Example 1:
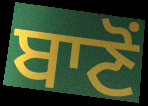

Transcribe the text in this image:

ਬਾਣੋਂ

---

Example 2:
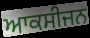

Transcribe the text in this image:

ਆਕਸੀਜਨ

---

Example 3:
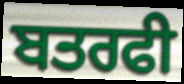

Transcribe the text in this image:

ਬਤਰਫੀ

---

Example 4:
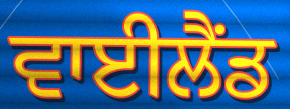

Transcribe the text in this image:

ਵਾਈਲੈਂਡ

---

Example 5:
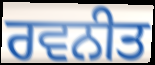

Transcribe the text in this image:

ਰਵਨੀਤ